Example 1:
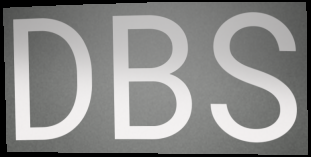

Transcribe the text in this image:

DBS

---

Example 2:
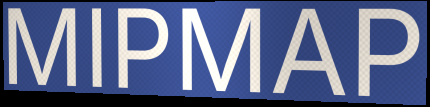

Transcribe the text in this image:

MIPMAP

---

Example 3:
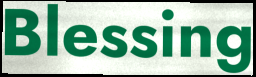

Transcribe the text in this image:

Blessing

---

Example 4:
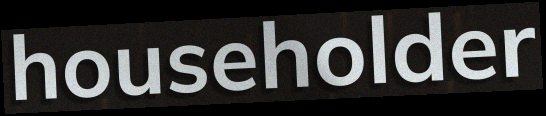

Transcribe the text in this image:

householder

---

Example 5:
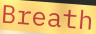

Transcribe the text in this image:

Breath